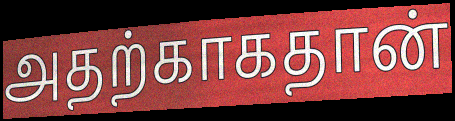
அதற்காகதான்